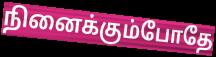
நினைக்கும்போதே